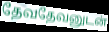
தேவதேவனுடன்